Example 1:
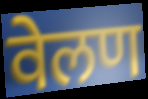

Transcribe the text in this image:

वेलण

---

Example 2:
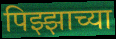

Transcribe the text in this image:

पिझ्झाच्या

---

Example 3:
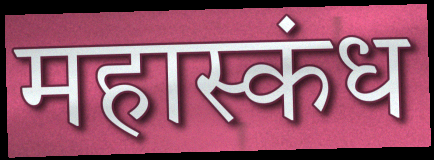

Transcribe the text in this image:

महास्कंध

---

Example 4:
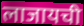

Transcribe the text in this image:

लाजायची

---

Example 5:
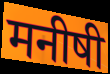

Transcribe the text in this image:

मनीषी